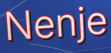
Nenje